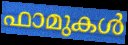
ഫാമുകൾ